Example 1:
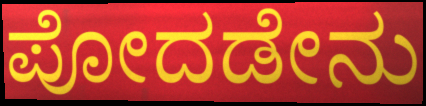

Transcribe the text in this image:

ಪೋದಡೇನು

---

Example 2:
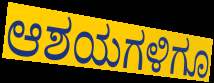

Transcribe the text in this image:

ಆಶಯಗಳಿಗೂ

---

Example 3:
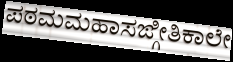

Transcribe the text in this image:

ಪಠಮಮಹಾಸಙ್ಗೀತಿಕಾಲೇ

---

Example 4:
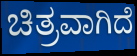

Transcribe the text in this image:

ಚಿತ್ರವಾಗಿದೆ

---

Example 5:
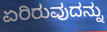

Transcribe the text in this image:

ಏರಿರುವುದನ್ನು